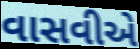
વાસવીએ